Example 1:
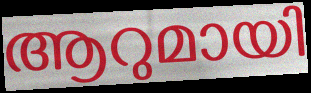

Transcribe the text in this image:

ആറുമായി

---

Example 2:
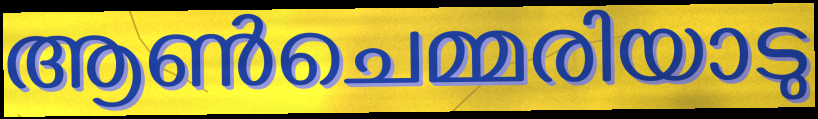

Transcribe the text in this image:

ആൺചെമ്മരിയാടു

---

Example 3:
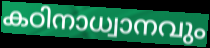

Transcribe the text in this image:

കഠിനാധ്വാനവും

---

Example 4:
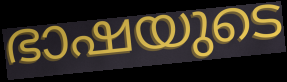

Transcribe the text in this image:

ഭാഷയുടെ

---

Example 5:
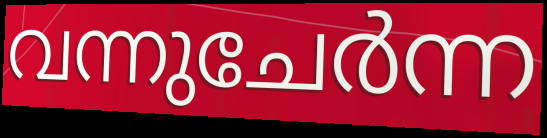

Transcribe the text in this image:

വന്നുചേർന്ന